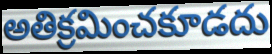
అతిక్రమించకూడదు